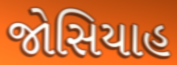
જોસિયાહ